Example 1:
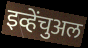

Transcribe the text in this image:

इव्हेंचुअल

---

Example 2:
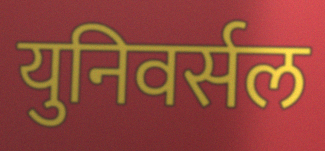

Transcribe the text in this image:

युनिवर्सल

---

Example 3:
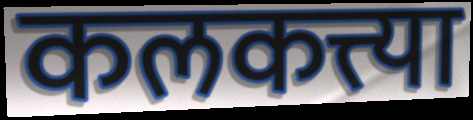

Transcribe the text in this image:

कलकत्त्या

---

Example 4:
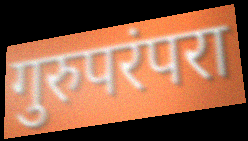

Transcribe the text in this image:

गुरुपरंपरा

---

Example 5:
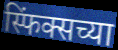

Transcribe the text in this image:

स्फिंक्सच्या